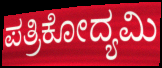
ಪತ್ರಿಕೋದ್ಯಮಿ